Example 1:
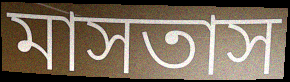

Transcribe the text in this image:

মাসতাস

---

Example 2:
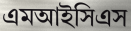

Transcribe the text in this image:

এমআইসিএস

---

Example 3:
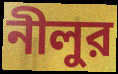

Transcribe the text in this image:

নীলুর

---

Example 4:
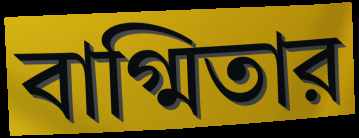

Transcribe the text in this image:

বাগ্মিতার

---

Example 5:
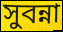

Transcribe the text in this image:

সুবন্না